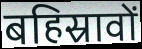
बहिस्रावों